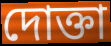
দোক্তা